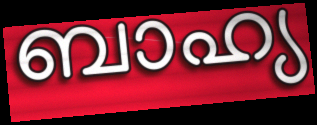
ബാഹ്യ